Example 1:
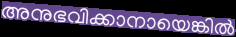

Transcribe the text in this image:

അനുഭവിക്കാനായെങ്കിൽ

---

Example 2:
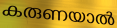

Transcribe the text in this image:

കരുണയാൽ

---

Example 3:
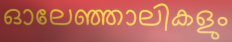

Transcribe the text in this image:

ഓലേഞ്ഞാലികളും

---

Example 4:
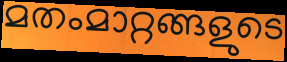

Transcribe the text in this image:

മതംമാറ്റങ്ങളുടെ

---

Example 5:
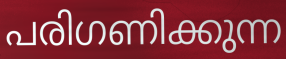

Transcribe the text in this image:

പരിഗണിക്കുന്ന